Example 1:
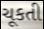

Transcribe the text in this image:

ચૂકતી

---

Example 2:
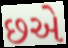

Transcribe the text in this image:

છએ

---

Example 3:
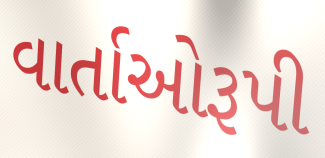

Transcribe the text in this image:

વાર્તાઓરૂપી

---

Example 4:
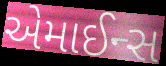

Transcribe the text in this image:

એમાઈન્સ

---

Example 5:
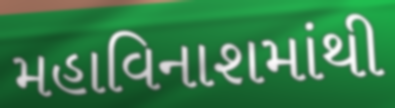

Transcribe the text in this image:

મહાવિનાશમાંથી